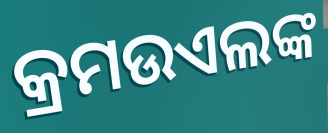
କ୍ରମଉଏଲଙ୍କ